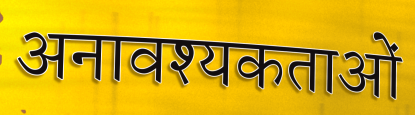
अनावश्यकताओं